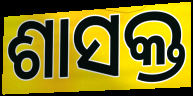
ଶାସକ୍ତ